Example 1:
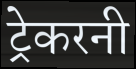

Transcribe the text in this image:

ट्रेकरनी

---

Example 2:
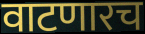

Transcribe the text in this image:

वाटणारच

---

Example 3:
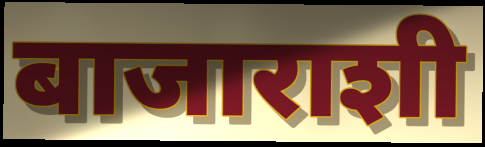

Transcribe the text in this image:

बाजाराशी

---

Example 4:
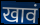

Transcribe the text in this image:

खावं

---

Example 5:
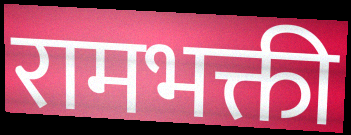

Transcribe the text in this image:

रामभक्ती